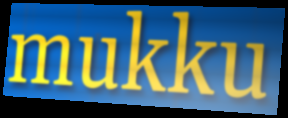
mukku